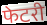
फेटरी